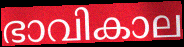
ഭാവികാല